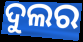
ଦୁଲର